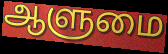
ஆளுமை